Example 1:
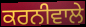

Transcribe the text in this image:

ਕਰਨੀਵਾਲੇ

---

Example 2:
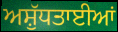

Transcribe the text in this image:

ਅਸ਼ੁੱਧਤਾਈਆਂ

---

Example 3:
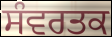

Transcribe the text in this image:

ਸੰਵਰਤਕ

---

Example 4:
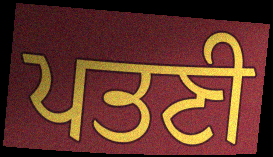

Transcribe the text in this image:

ਪਤਣੀ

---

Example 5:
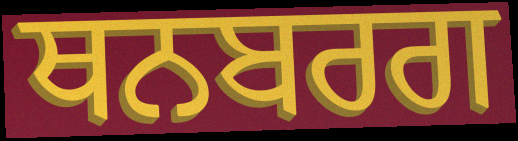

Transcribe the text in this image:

ਥਨਬਰਗ